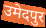
उमेदपुर